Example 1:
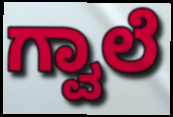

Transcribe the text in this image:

ಗ್ವಾಲೆ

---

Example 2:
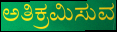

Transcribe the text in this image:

ಅತಿಕ್ರಮಿಸುವ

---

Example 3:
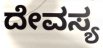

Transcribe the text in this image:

ದೇವಸ್ಯ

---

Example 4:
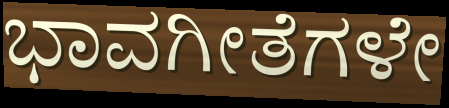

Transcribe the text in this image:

ಭಾವಗೀತೆಗಳೇ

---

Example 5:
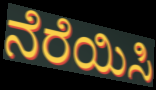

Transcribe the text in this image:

ನೆರೆಯಿಸಿ